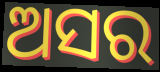
ଅସର